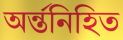
অর্ন্তনিহিত